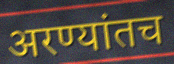
अरण्यांतच